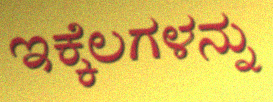
ಇಕ್ಕೆಲಗಳನ್ನು